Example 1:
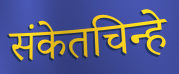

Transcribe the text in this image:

संकेतचिन्हे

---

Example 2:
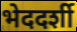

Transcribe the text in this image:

भेददर्शी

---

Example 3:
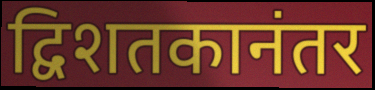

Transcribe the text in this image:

द्विशतकानंतर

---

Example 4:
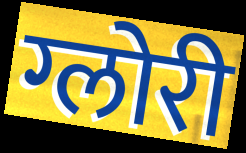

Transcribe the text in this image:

ग्लोरी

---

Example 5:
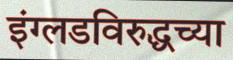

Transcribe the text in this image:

इंग्लडविरुद्धच्या